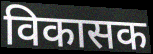
विकासक